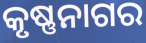
କୃଷ୍ଣନାଗର